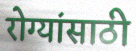
रोग्यांसाठी